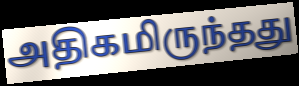
அதிகமிருந்தது